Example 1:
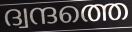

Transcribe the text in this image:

ദ്വന്ദത്തെ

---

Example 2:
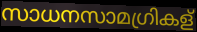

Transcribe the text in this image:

സാധനസാമഗ്രികള്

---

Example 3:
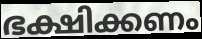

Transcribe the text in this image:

ഭക്ഷിക്കണം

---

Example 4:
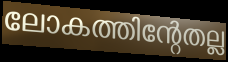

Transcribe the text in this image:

ലോകത്തിന്റേതല്ല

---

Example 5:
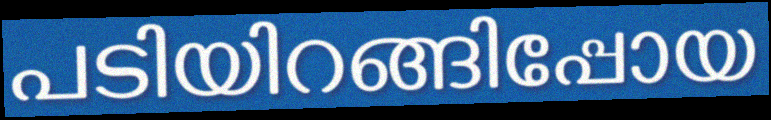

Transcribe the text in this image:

പടിയിറങ്ങിപ്പോയ